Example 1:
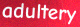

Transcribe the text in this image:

adultery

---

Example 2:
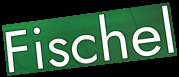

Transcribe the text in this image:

Fischel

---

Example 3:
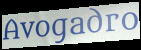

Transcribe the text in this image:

Avogadro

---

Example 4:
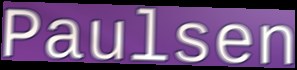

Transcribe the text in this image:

Paulsen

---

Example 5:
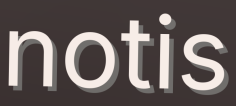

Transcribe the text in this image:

notis